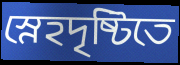
স্নেহদৃষ্টিতে